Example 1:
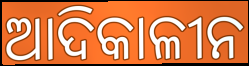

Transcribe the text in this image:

ଆଦିକାଳୀନ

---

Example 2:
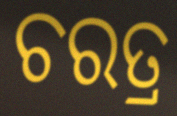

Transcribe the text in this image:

ଚରତ୍ର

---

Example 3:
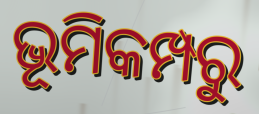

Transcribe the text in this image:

ଭୂମିକମ୍ପରୁ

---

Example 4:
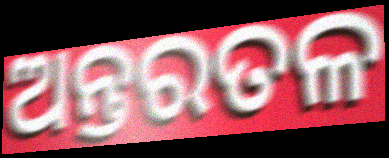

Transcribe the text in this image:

ଅନ୍ତରତଳ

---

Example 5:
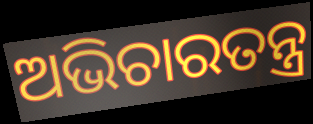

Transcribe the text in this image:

ଅଭିଚାରତନ୍ତ୍ର